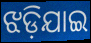
ଝଡ଼ିଯାଇ